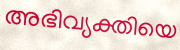
അഭിവ്യക്തിയെ